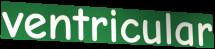
ventricular